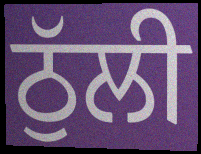
ਠੁੱਲੀ